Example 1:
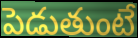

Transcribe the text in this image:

పెడుతుంటే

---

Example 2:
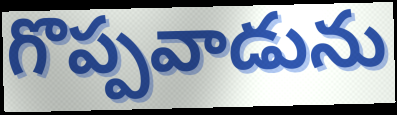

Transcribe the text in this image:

గొప్పవాడును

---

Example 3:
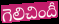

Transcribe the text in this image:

గెలిచిందీ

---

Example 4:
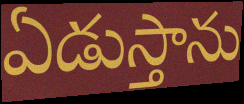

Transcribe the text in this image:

ఏడుస్తాను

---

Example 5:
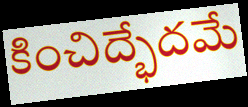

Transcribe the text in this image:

కించిద్భేదమే